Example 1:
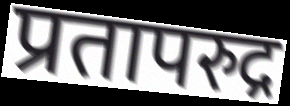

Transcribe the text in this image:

प्रतापरुद्र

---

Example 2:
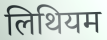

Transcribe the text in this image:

लिथियम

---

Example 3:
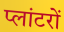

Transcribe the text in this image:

प्लांटरों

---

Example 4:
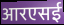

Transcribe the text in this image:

आरएसई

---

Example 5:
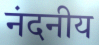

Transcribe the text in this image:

नंदनीय